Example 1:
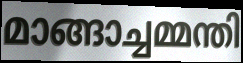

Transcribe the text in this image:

മാങ്ങാച്ചമ്മന്തി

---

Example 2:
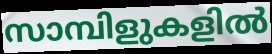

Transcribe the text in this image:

സാമ്പിളുകളിൽ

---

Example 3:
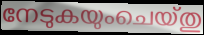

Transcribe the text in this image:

നേടുകയുംചെയ്തു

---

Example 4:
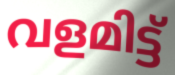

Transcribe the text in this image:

വളമിട്ട്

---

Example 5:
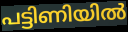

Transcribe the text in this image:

പട്ടിണിയിൽ